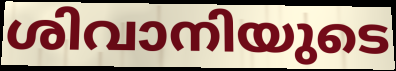
ശിവാനിയുടെ